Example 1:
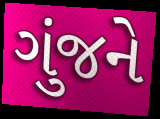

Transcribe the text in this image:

ગુંજને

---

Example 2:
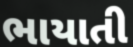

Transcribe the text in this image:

ભાયાતી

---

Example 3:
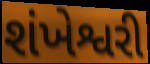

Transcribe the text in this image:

શંખેશ્વરી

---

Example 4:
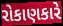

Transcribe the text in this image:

રોકાણકારે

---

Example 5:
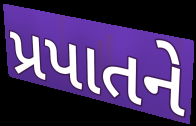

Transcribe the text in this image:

પ્રપાતને